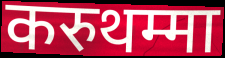
करुथम्मा